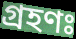
গ্রহণঃ